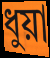
ধুয়া